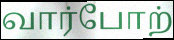
வார்போற்